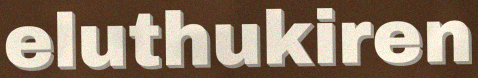
eluthukiren